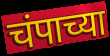
चंपाच्या